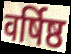
वर्षिष्ठ